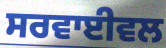
ਸਰਵਾਈਵਲ